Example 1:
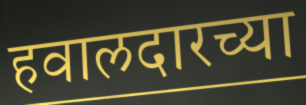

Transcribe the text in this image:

हवालदारच्या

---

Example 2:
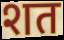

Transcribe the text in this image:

शत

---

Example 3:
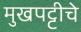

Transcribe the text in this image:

मुखपट्टीचे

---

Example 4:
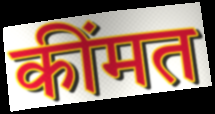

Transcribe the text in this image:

कींमत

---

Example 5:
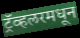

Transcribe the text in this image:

ट्रॅव्हलरमधून